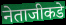
नेताजीकडे